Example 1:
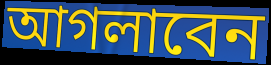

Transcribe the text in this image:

আগলাবেন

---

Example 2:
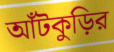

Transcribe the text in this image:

আঁটকুড়ির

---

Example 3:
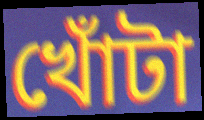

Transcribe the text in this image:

খোঁটা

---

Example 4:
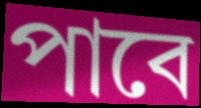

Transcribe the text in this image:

পাবে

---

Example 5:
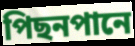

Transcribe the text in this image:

পিছনপানে